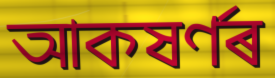
আকষৰ্ণৰ